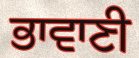
ਭਾਵਾਣੀ